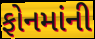
ફોનમાંની